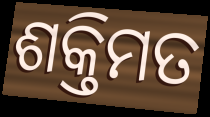
ଶକ୍ତିମତ